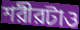
শরীরটাও